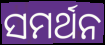
ସମର୍ଥନ